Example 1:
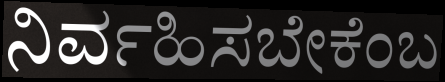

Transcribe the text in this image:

ನಿರ್ವಹಿಸಬೇಕೆಂಬ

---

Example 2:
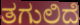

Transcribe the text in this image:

ತಗುಲಿದೆ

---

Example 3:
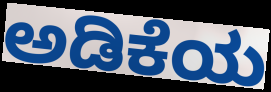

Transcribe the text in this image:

ಅಡಿಕೆಯ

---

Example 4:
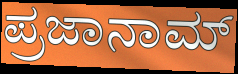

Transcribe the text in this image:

ಪ್ರಜಾನಾಮ್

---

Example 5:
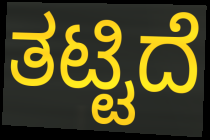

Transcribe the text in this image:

ತಟ್ಟಿದೆ